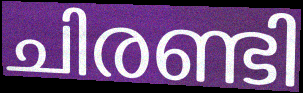
ചിരണ്ടി